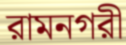
রামনগরী